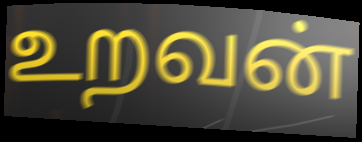
உறவன்